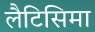
लैटिसिमा